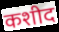
कशीद